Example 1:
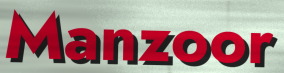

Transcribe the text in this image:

Manzoor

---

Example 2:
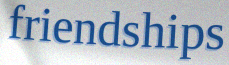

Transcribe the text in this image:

friendships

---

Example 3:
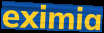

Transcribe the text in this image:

eximia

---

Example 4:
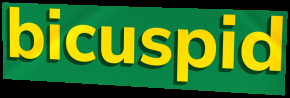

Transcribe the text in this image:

bicuspid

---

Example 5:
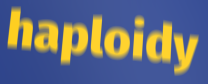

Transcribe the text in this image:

haploidy